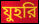
যুহরি